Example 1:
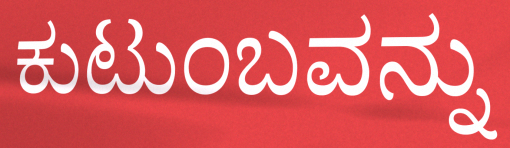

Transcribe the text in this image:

ಕುಟುಂಬವನ್ನು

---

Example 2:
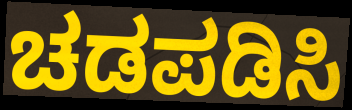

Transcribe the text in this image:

ಚಡಪಡಿಸಿ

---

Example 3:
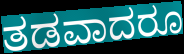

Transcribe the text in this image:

ತಡವಾದರೂ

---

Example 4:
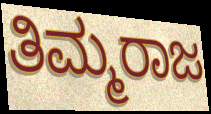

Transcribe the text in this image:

ತಿಮ್ಮರಾಜ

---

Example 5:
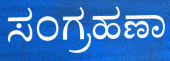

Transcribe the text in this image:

ಸಂಗ್ರಹಣಾ